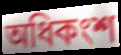
অধিকংশ